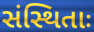
સંસ્થિતાઃ